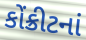
કોંક્રીટનાં